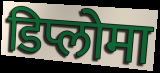
डिप्लोमा